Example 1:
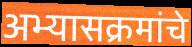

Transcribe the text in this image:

अभ्यासक्रमांचे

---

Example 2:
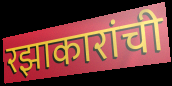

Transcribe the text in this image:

रझाकारांची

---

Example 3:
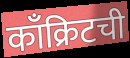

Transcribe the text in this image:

काँक्रिटची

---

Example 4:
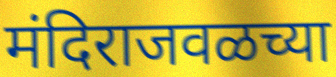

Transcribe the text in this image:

मंदिराजवळच्या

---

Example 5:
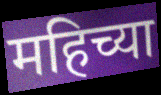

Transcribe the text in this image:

महिच्या